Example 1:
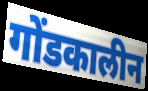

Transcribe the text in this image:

गोंडकालीन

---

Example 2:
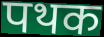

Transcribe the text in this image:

पथक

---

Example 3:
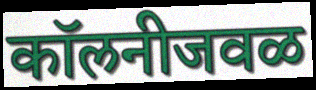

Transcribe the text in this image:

कॉलनीजवळ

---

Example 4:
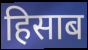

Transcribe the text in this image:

हिसाब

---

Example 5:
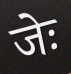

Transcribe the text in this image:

जेः